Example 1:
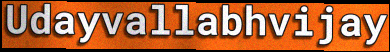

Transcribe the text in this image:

Udayvallabhvijay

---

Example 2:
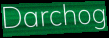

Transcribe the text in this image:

Darchog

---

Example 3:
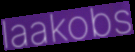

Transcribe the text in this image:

Iaakobs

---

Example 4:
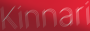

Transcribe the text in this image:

Kinnari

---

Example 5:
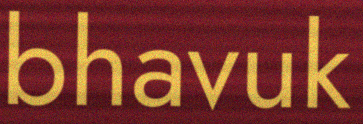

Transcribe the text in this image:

bhavuk